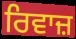
ਰਿਵਾਜ਼